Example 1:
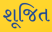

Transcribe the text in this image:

શૂજિત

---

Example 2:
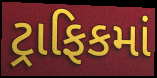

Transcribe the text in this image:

ટ્રાફિકમાં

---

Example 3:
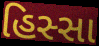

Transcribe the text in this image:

હિસ્સા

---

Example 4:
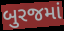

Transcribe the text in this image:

બુરજમાં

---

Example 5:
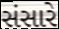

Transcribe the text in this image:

સંસારે